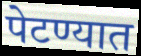
पेटण्यात